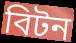
বিটন